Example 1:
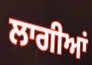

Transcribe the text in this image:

ਲਾਗੀਆਂ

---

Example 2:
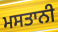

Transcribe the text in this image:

ਮਸਤਾਨੀ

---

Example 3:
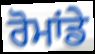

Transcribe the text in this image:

ਰੋਮਾਂਡੇ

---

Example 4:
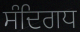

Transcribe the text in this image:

ਸੰਦਿਗਧ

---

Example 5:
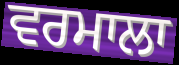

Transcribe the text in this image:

ਵਰਮਾਲਾ